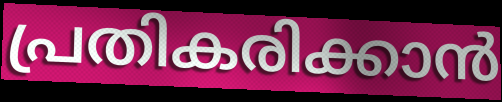
പ്രതികരിക്കാൻ